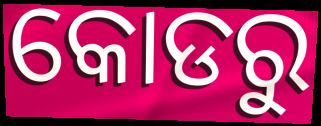
କୋଡରୁ